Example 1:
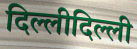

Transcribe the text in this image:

दिल्लीदिल्ली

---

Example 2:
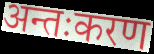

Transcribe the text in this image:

अन्तःकरण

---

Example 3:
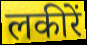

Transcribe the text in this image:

लकीरें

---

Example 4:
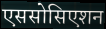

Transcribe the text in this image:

एससोसिएशन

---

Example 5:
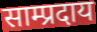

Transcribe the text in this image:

साम्प्रदाय